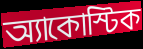
অ্যাকোস্টিক